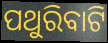
ପଥୁରିବାଟି